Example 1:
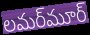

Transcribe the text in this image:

లమర్‌మూర్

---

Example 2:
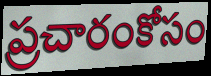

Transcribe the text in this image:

ప్రచారంకోసం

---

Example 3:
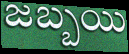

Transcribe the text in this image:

జబ్బయి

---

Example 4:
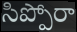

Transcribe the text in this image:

సిప్పోరా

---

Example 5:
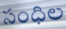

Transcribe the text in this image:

సంధిల